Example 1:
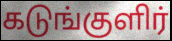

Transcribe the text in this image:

கடுங்குளிர்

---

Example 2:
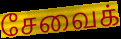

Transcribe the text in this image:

சேவைக்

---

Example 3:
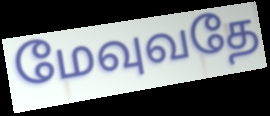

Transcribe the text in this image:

மேவுவதே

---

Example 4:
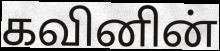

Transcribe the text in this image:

கவினின்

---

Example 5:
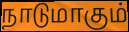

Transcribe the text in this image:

நாடுமாகும்